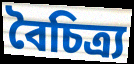
বৈচিত্র্য